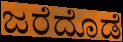
ಜರೆದೊಡೆ